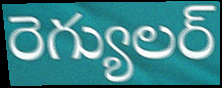
రెగ్యులర్